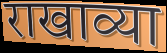
राखाव्या